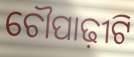
ଚୌପାଢ଼ୀଟି